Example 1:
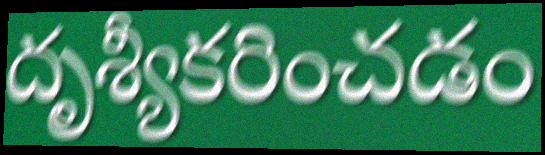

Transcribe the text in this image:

దృశ్యీకరించడం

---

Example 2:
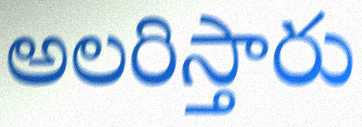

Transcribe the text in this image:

అలరిస్తారు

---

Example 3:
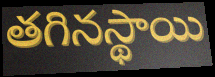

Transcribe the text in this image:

తగినస్థాయి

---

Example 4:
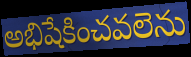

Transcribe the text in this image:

అభిషేకించవలెను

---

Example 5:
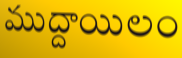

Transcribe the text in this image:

ముద్దాయిలం